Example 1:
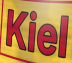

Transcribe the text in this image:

Kiel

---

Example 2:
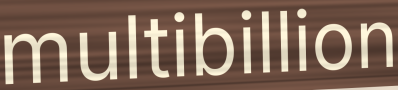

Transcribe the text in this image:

multibillion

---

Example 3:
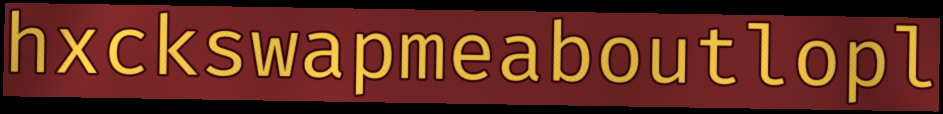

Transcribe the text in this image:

hxckswapmeaboutlopl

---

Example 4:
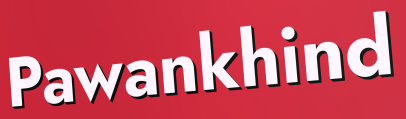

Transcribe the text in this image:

Pawankhind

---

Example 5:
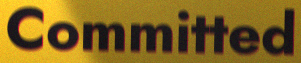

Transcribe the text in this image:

Committed